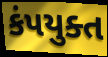
કંપયુક્ત